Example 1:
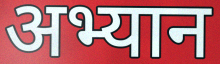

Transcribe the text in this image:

अभ्यान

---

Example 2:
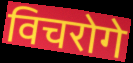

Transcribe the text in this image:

विचरोगे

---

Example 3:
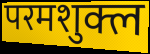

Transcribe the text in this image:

परमशुक्ल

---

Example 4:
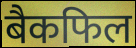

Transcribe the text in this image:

बैकफिल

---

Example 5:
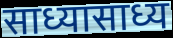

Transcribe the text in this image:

साध्यासाध्य